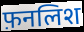
फ़नलिश